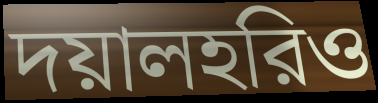
দয়ালহরিও